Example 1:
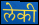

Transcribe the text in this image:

लेकी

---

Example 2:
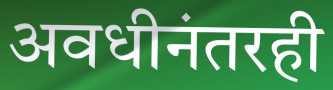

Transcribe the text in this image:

अवधीनंतरही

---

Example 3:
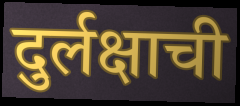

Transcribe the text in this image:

दुर्लक्षाची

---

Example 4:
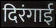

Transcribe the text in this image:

दिरंगाई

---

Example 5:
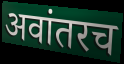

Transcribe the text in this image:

अवांतरच